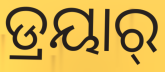
ଡ୍ରୟାର୍